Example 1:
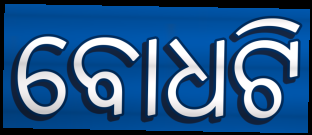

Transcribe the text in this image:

ବୋଧଟି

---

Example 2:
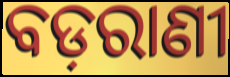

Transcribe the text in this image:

ବଡ଼ରାଣୀ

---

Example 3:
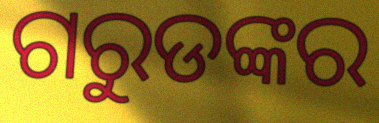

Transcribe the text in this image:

ଗରୁଡଙ୍କର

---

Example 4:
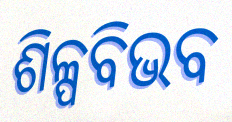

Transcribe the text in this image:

ଶିଳ୍ପବିଭବ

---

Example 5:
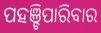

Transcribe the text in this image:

ପହଞ୍ଚିପାରିବାର